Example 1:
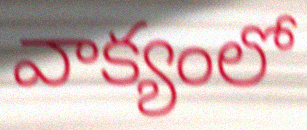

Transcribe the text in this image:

వాక్యంలో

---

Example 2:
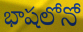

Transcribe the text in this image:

భాషలోనో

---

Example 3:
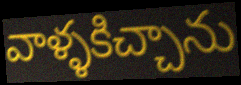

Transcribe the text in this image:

వాళ్ళకిచ్చాను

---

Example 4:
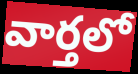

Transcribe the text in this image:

వార్తలో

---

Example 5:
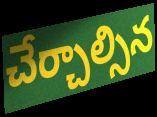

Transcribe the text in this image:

చేర్చాల్సిన